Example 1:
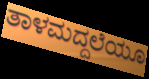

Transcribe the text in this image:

ತಾಳಮದ್ದಲೆಯೂ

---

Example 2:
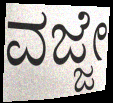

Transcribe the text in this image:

ವಜ್ಜೇ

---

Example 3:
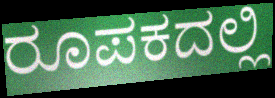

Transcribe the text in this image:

ರೂಪಕದಲ್ಲಿ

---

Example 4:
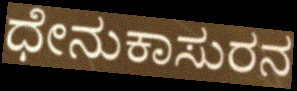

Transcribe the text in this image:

ಧೇನುಕಾಸುರನ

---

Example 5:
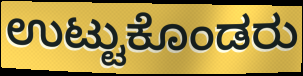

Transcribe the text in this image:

ಉಟ್ಟುಕೊಂಡರು